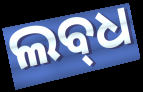
ଲବ୍‌ଧ